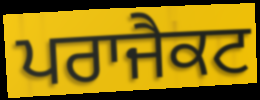
ਪਰਾਜੈਕਟ